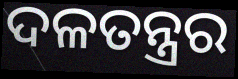
ଦଳତନ୍ତ୍ରର